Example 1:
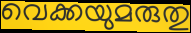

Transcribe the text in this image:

വെക്കയുമരുതു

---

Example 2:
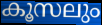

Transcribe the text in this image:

കൂസലും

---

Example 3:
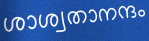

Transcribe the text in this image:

ശാശ്വതാനന്ദം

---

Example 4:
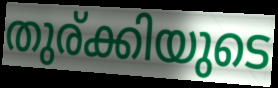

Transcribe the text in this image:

തുര്ക്കിയുടെ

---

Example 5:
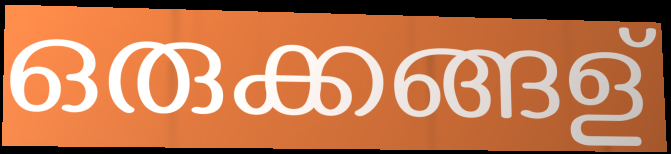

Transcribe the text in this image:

ഒരുക്കങ്ങള്